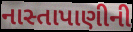
નાસ્તાપાણીની